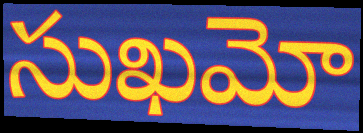
సుఖమో